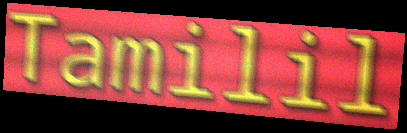
Tamilil